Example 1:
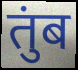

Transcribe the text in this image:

तुंब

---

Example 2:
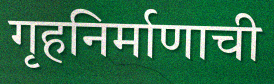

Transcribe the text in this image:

गृहनिर्माणाची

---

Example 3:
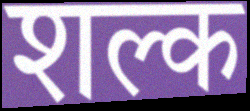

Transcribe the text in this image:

शल्क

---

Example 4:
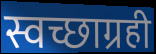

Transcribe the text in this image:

स्वच्छाग्रही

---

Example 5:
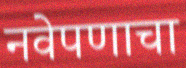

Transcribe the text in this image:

नवेपणाचा